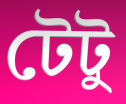
টেটু